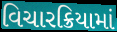
વિચારક્રિયામાં